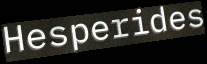
Hesperides